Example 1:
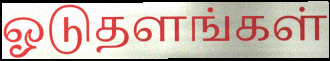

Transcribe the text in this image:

ஓடுதளங்கள்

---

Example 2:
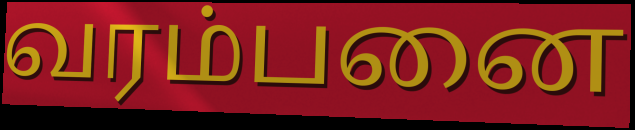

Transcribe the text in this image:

வரம்பனை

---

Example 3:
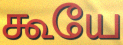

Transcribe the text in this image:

கூயே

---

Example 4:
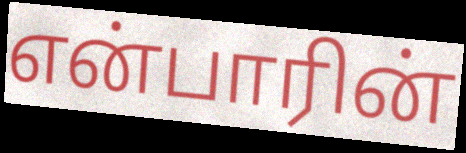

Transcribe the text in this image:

என்பாரின்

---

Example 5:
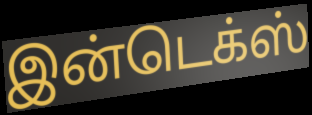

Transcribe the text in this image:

இன்டெக்ஸ்